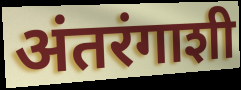
अंतरंगाशी